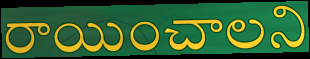
రాయించాలని